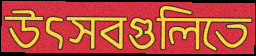
উৎসবগুলিতে